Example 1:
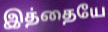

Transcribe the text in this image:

இத்தையே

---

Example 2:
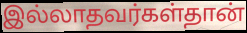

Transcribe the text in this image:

இல்லாதவர்கள்தான்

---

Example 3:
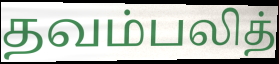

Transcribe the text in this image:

தவம்பலித்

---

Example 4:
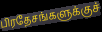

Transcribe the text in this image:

பிரதேசங்களுக்குச்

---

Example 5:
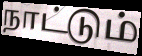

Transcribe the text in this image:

நாட்டும்